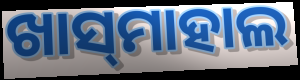
ଖାସ୍‌ମାହାଲ